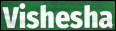
Vishesha